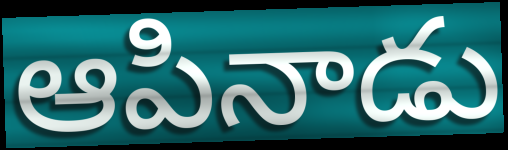
ఆపినాడు